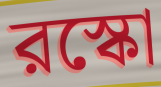
রস্কো